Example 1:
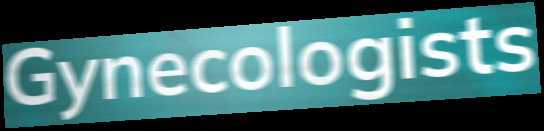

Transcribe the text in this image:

Gynecologists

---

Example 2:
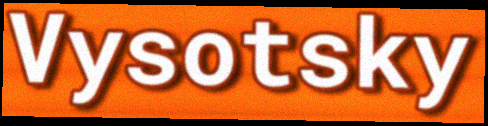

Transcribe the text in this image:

Vysotsky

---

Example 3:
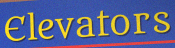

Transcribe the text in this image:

Elevators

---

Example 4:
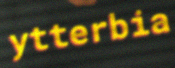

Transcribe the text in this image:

ytterbia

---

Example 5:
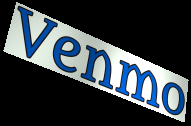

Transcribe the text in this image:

Venmo